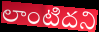
లాంటిదని